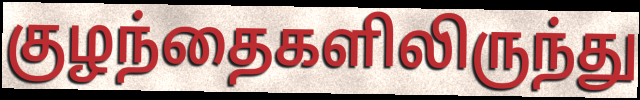
குழந்தைகளிலிருந்து